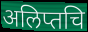
अलिप्तचि